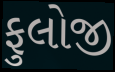
ફુલોજી